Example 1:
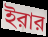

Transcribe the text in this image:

ইরার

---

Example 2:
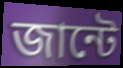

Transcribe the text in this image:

জান্টে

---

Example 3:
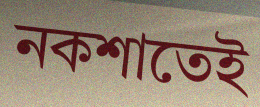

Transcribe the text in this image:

নকশাতেই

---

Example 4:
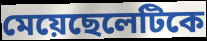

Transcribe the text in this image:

মেয়েছেলেটিকে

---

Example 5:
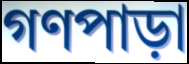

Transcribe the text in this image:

গণপাড়া